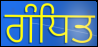
ਗੰਧਿਤ